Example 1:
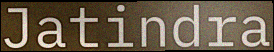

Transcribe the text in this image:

Jatindra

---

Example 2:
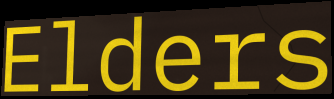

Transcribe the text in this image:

Elders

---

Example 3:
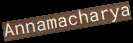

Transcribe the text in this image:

Annamacharya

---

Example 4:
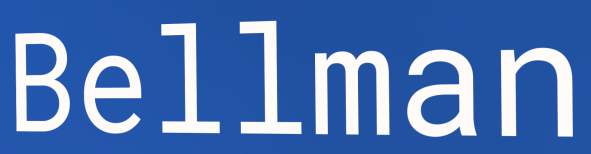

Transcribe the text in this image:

Bellman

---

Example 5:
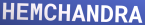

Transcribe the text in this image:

HEMCHANDRA